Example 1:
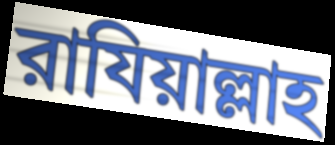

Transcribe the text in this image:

রাযিয়াল্লাহ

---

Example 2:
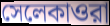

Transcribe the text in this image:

সেলেকাওরা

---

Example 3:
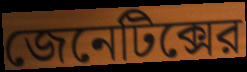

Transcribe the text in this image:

জেনেটিক্সের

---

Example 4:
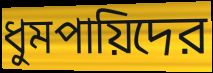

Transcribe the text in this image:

ধুমপায়িদের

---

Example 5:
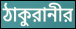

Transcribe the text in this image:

ঠাকুরানীর